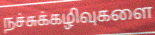
நச்சுக்கழிவுகளை